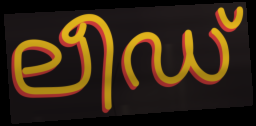
ലീഡ്